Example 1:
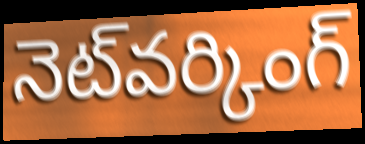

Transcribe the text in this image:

నెట్‌వర్కింగ్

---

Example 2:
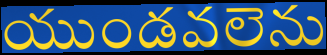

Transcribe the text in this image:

యుండవలెను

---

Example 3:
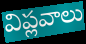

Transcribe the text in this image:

విప్లవాలు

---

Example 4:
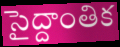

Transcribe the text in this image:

సైద్దాంతిక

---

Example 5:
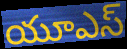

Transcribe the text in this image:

యూఎస్